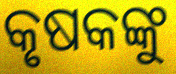
କୃଷକଙ୍କୁ